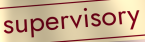
supervisory